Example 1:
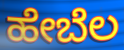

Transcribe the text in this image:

ಹೇಬೆಲ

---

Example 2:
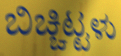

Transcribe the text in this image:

ಬಿಚ್ಚಿಟ್ಟಳು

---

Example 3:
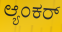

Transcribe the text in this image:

ಆ್ಯಂಕರ್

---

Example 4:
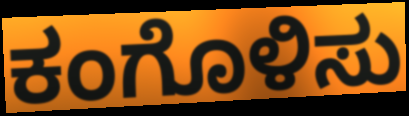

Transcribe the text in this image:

ಕಂಗೊಳಿಸು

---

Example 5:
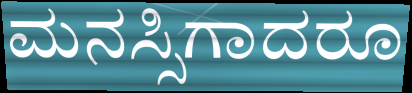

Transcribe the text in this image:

ಮನಸ್ಸಿಗಾದರೂ